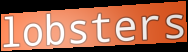
lobsters